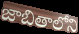
జాబితాలోని